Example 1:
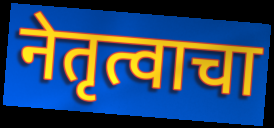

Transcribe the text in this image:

नेतृत्वाचा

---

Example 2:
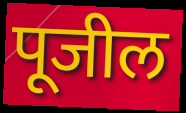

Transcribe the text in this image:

पूजील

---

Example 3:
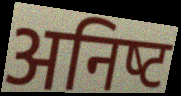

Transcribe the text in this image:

अनिष्‍ट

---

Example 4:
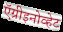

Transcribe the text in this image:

ऍग्रीइनोव्हेट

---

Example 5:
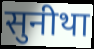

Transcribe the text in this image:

सुनीथा